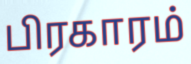
பிரகாரம்